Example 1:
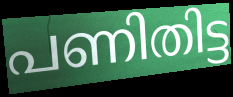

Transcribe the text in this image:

പണിതിട്ട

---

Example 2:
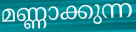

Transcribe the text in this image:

മണ്ണാക്കുന്ന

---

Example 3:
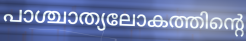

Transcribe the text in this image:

പാശ്ചാത്യലോകത്തിന്റെ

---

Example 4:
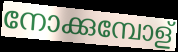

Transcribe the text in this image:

നോക്കുമ്പോള്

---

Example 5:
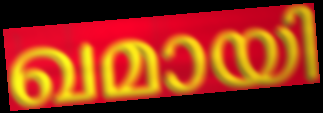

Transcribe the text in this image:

ഖമായി